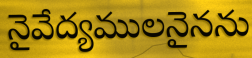
నైవేద్యములనైనను